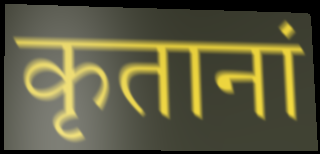
कृतानां